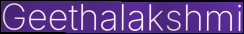
Geethalakshmi